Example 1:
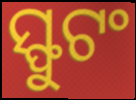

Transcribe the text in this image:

ସ୍ଫୁଟଂ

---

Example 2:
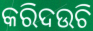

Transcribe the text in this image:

କରିଦଉଚି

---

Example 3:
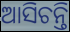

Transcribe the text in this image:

ଆସିଚନ୍ତି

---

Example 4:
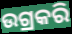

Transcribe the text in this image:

ଉଗ୍ରକରି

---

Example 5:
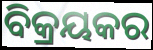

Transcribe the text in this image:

ବିକ୍ରୟକର